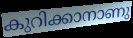
കുറിക്കാനാണു